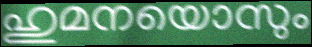
ഹുമനയൊസും